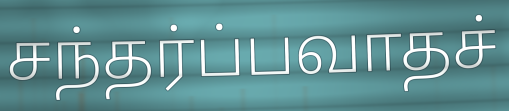
சந்தர்ப்பவாதச்